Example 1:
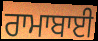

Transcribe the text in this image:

ਰਾਮਾਬਾਈ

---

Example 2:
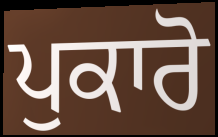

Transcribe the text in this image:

ਪੁਕਾਰੋ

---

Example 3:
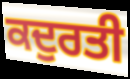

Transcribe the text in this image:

ਕਦੁਰਤੀ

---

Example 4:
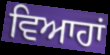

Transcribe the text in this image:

ਵਿਆਹਾਂ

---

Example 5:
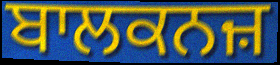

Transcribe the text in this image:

ਬਾਲਕਨਜ਼